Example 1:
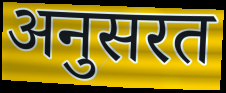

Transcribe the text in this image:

अनुसरत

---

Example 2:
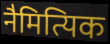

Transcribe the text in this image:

नैमित्यिक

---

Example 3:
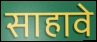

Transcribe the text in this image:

साहावे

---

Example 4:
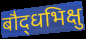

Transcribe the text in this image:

बौद्धभिक्षु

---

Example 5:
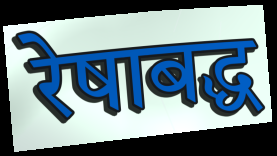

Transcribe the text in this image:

रेषाबद्ध